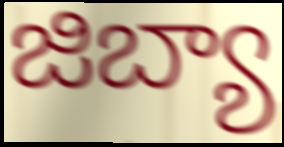
జిబ్యా